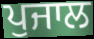
ਪੁਜਾਲ